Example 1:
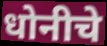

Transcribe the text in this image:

धोनीचे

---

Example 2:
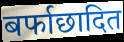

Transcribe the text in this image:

बर्फाछादित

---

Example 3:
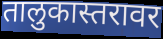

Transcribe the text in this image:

तालुकास्तरावर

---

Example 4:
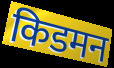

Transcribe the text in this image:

किडमन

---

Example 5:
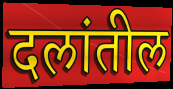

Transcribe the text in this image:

दलांतील